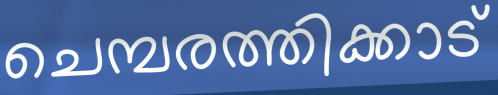
ചെമ്പരത്തിക്കാട്